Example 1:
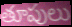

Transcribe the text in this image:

తూపులు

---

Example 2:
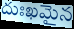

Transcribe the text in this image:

దుఃఖమైన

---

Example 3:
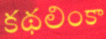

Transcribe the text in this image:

కథలింకా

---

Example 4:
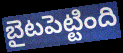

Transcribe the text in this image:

బైటపెట్టింది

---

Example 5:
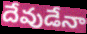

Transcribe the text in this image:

దేవుడేనా